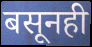
बसूनही